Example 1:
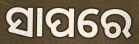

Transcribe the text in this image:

ସାପରେ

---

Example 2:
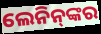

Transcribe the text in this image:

ଲେନିନ୍‌ଙ୍କର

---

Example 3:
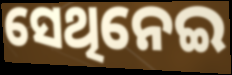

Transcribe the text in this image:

ସେଥିନେଇ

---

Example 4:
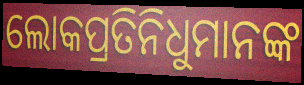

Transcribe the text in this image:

ଲୋକପ୍ରତିନିଧୁମାନଙ୍କ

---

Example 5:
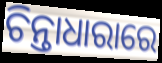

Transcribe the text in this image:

ଚିନ୍ତାଧାରାରେ